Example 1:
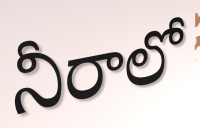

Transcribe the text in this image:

నీరాలో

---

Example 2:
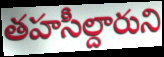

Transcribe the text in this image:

తహసీల్దారుని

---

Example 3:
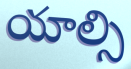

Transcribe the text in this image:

యాల్సి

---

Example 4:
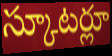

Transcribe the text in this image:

స్కూటర్లూ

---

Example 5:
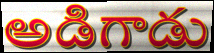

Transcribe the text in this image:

అడిగాడు